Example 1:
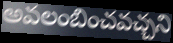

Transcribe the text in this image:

అవలంబించవచ్చని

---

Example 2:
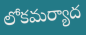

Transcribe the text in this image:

లోకమర్యాద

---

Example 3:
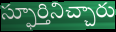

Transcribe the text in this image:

స్ఫూర్తినిచ్చారు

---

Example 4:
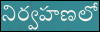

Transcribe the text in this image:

నిర్వహణలో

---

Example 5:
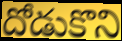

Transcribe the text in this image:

దోడుకొని